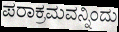
ಪರಾಕ್ರಮವನ್ನಿಂದು